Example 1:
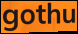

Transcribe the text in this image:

gothu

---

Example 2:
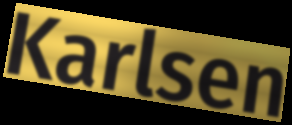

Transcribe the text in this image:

Karlsen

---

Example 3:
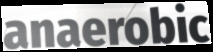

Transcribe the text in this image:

anaerobic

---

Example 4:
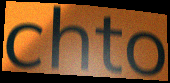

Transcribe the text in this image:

chto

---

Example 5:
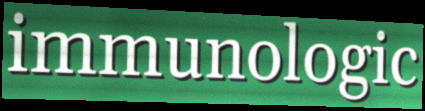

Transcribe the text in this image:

immunologic